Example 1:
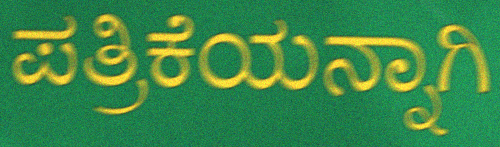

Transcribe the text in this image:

ಪತ್ರಿಕೆಯನ್ನಾಗಿ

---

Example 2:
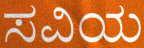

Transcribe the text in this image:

ಸವಿಯ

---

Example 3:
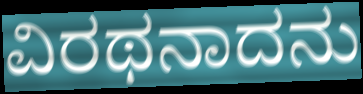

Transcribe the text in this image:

ವಿರಥನಾದನು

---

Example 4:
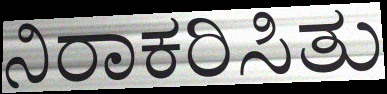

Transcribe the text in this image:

ನಿರಾಕರಿಸಿತು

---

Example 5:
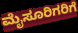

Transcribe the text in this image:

ಮೈಸೂರಿಗರಿಗೆ